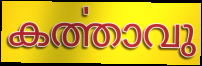
കൎത്താവു